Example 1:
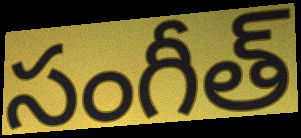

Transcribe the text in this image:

సంగీత్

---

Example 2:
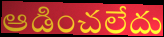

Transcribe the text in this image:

ఆడించలేదు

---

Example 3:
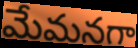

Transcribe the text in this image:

మేమనగా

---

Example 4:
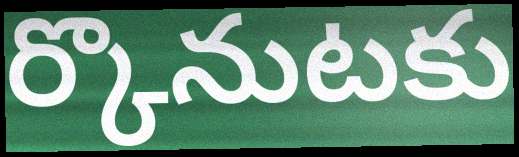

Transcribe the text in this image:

ర్కొనుటకు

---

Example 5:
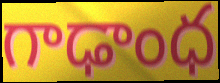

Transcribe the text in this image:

గాఢాంధ